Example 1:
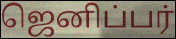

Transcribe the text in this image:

ஜெனிப்பர்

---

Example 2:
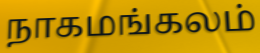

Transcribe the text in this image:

நாகமங்கலம்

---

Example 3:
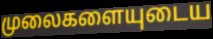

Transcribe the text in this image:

முலைகளையுடைய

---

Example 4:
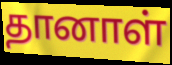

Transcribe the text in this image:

தானாள்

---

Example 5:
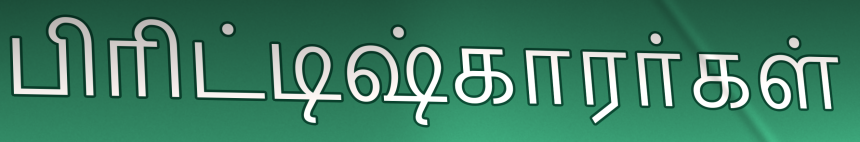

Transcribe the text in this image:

பிரிட்டிஷ்காரர்கள்